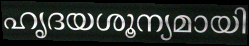
ഹൃദയശൂന്യമായി